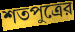
শতপুত্রের